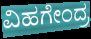
ವಿಹಗೇಂದ್ರ